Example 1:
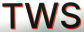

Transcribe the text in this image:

TWS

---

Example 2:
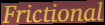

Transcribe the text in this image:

Frictional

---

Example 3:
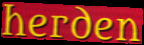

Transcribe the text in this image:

herden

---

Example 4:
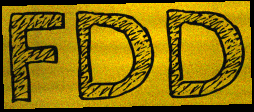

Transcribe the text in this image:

FDD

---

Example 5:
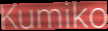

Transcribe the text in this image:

Kumiko